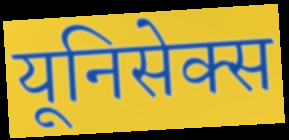
यूनिसेक्स